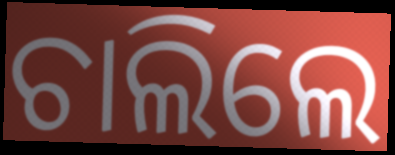
ଚାଲିଲେ